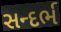
સન્દર્ભ